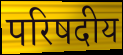
परिषदीय